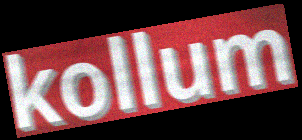
kollum